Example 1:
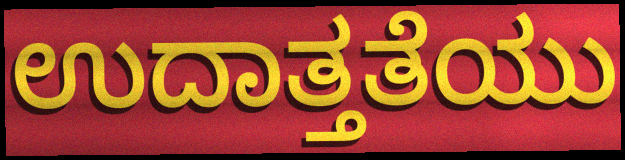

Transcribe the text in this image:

ಉದಾತ್ತತೆಯು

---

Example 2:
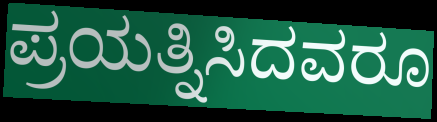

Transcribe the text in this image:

ಪ್ರಯತ್ನಿಸಿದವರೂ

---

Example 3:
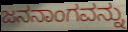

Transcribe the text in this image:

ಜನನಾಂಗವನ್ನು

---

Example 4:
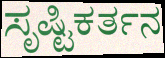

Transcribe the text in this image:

ಸೃಷ್ಟಿಕರ್ತನ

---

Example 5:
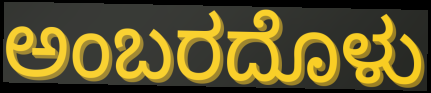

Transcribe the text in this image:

ಅಂಬರದೊಳು